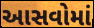
આસવોમાં